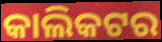
କାଲିକଟର